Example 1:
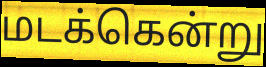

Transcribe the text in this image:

மடக்கென்று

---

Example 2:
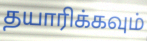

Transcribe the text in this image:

தயாரிக்கவும்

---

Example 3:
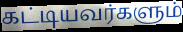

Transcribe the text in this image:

கட்டியவர்களும்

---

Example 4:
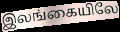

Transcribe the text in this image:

இலங்கையிலே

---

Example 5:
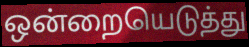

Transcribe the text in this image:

ஒன்றையெடுத்து